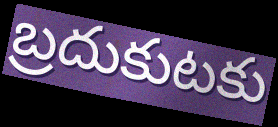
బ్రదుకుటకు